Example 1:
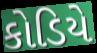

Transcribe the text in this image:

કોડિયે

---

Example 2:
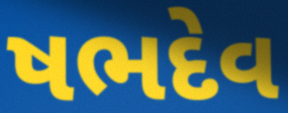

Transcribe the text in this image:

ષભદેવ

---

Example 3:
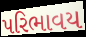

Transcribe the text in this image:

પરિભાવય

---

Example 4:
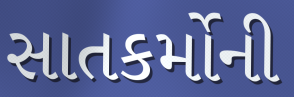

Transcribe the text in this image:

સાતકર્મોની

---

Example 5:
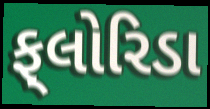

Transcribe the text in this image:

ફ્‌લોરિડા